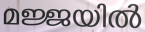
മജ്ജയിൽ